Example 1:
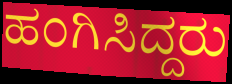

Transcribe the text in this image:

ಹಂಗಿಸಿದ್ದರು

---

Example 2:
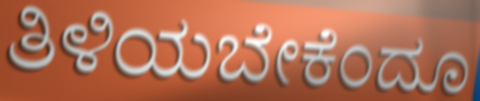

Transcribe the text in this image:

ತಿಳಿಯಬೇಕೆಂದೂ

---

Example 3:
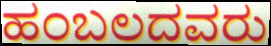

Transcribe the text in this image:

ಹಂಬಲದವರು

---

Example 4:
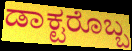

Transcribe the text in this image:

ಡಾಕ್ಟರೊಬ್ಬ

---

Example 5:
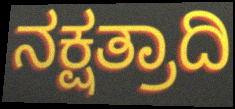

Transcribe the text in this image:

ನಕ್ಷತ್ರಾದಿ